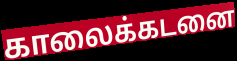
காலைக்கடனை